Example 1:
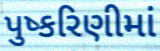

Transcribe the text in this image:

પુષ્કરિણીમાં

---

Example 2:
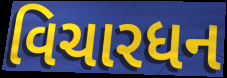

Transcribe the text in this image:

વિચારધન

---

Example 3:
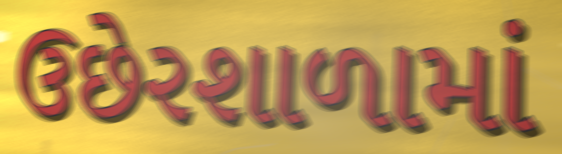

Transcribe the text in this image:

ઉછેરશાળામાં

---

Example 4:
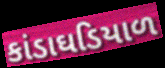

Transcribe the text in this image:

કાંડાઘડિયાળ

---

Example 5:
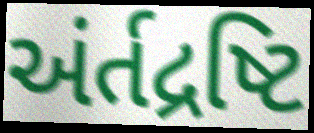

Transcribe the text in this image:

અંર્તદ્રષ્ટિ